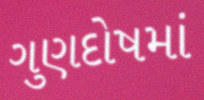
ગુણદોષમાં